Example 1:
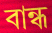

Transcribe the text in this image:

বান্ধ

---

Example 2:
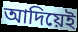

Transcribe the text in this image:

আদিয়েই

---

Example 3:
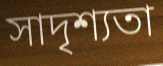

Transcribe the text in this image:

সাদৃশ্যতা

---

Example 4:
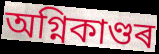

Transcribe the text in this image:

অগ্নিকাণ্ডৰ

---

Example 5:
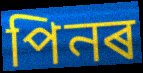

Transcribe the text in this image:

পিনৰ